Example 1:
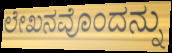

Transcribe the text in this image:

ಲೇಖನವೊಂದನ್ನು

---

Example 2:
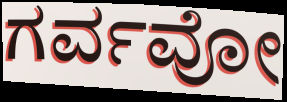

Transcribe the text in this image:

ಗರ್ವವೋ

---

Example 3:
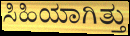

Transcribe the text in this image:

ಸಿಹಿಯಾಗಿತ್ತು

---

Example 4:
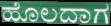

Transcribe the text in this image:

ಹೊಲದಾಗ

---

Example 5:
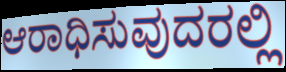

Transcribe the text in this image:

ಆರಾಧಿಸುವುದರಲ್ಲಿ